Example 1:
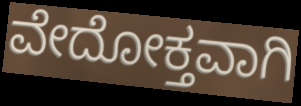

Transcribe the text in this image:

ವೇದೋಕ್ತವಾಗಿ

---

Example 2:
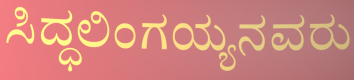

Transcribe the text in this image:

ಸಿದ್ಧಲಿಂಗಯ್ಯನವರು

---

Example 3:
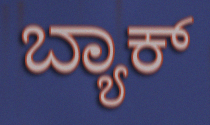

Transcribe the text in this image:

ಬ್ಯಾಕ್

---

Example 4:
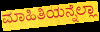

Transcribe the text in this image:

ಮಾಹಿತಿಯನ್ನೆಲ್ಲಾ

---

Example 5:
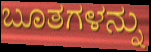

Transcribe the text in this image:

ಬೂತಗಳನ್ನು